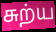
சுற்ய